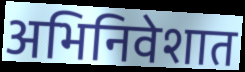
अभिनिवेशात